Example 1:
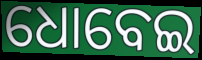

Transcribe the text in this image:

ଧୋବେଇ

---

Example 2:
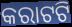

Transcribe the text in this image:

କରାଟଟି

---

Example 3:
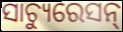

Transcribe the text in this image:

ସାଚ୍ୟୁରେସନ୍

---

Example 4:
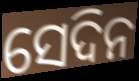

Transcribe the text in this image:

ସେଦିନ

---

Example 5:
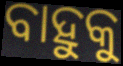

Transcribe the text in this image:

ବାହୁକୁ